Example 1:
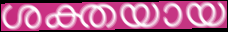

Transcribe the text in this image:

ശക്തയായ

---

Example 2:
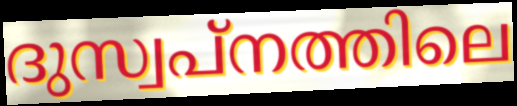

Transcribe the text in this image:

ദുസ്വപ്നത്തിലെ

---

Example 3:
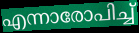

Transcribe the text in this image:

എന്നാരോപിച്ച്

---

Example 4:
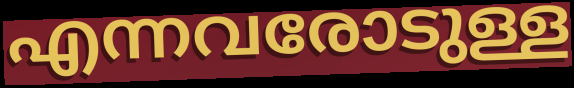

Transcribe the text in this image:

എന്നവരോടുള്ള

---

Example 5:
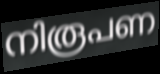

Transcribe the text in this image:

നിരൂപണ